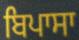
ਬਿਪਾਸਾ